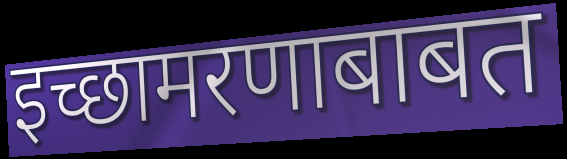
इच्छामरणाबाबत